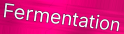
Fermentation